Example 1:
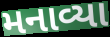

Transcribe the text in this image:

મનાવ્યા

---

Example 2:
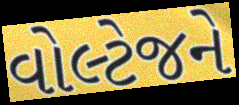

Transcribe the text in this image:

વોલ્ટેજને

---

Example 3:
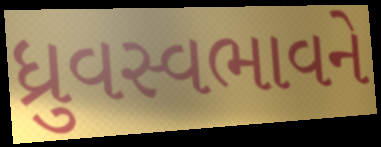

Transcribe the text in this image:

ધ્રુવસ્વભાવને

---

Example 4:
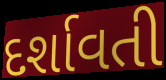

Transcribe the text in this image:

દર્શાવતી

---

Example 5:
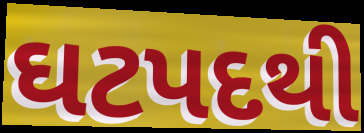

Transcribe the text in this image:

ઘટપદથી